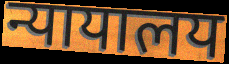
न्‍यायालय